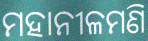
ମହାନୀଳମଣି